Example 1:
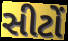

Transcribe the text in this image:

સીટોં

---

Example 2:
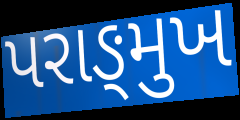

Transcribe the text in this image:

પરાઙ્મુખ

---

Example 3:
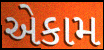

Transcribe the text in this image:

એકામ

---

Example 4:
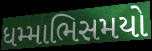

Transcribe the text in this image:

ધમ્માભિસમયો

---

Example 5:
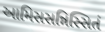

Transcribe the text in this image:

આમિસસન્નિસ્સિતં